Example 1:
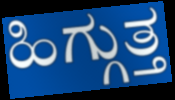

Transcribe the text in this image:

ಹಿಗ್ಗುತ್ತ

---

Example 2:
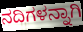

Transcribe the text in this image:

ನದಿಗಳನ್ನಾಗಿ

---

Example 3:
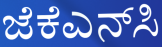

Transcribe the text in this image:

ಜೆಕೆಎನ್‌ಸಿ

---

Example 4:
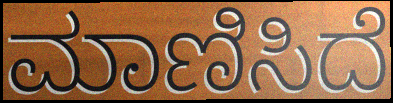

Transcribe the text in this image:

ಮಾಣಿಸಿದೆ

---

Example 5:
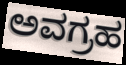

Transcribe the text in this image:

ಅವಗ್ರಹ